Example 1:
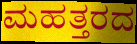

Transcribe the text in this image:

ಮಹತ್ತರದ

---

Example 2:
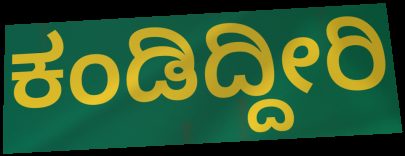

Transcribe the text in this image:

ಕಂಡಿದ್ದೀರಿ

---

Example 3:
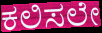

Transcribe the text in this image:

ಕಲಿಸಲೇ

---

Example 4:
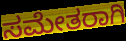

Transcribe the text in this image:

ಸಮೇತರಾಗಿ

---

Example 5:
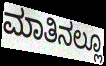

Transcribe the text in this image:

ಮಾತಿನಲ್ಲೂ